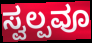
ಸ್ವಲ್ಪವೂ